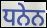
ਧਨੇਨ